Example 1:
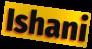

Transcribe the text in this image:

Ishani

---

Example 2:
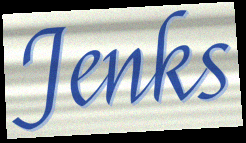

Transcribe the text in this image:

Jenks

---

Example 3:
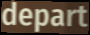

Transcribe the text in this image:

depart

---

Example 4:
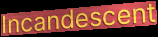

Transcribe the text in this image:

Incandescent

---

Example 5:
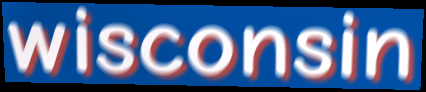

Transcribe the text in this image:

wisconsin